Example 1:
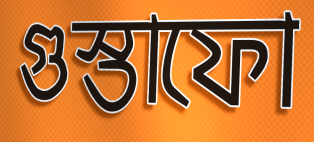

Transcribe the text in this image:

গুস্তাফো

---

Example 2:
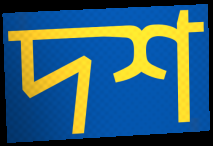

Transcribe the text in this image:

দশ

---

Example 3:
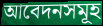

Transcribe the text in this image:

আবেদনসমূহ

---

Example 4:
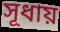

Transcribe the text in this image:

সূধায়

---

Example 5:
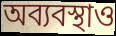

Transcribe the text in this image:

অব্যবস্থাও